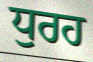
ਧੁਰਹ